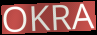
OKRA